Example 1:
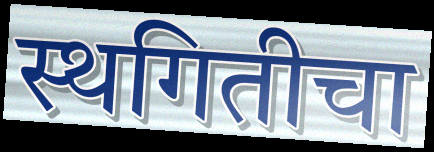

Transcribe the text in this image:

स्थगितीचा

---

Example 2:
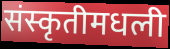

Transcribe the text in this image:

संस्कृतीमधली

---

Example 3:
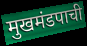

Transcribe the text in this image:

मुखमंडपाची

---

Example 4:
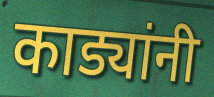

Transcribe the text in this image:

काड्यांनी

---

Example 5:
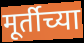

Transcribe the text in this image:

मूर्तीच्या